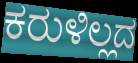
ಕರುಳಿಲ್ಲದ